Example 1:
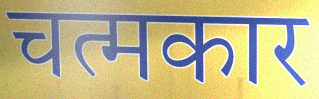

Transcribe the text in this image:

चत्मकार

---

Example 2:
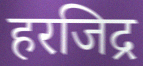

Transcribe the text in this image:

हरजिद्र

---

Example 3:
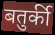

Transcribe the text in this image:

बतुर्की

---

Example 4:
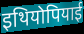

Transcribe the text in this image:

इथियोपियाई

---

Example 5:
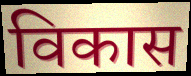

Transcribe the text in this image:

विकास